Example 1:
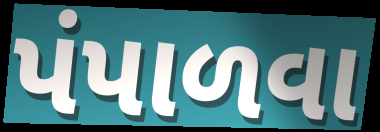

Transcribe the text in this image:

પંપાળવા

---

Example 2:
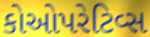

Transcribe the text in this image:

કોઓપરેટિવ્સ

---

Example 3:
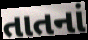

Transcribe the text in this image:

તાતનાં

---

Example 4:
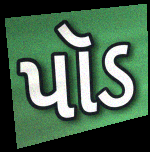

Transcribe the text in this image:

પૉડ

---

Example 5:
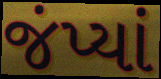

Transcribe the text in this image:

જંપ્યાં